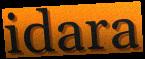
idara